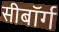
सीबॉर्ग